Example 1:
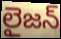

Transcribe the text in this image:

లైజన్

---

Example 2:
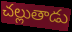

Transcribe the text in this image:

చల్లుతాడు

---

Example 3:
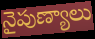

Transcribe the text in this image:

నైపుణ్యాలు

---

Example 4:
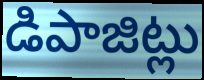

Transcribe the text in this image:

డిపాజిట్లు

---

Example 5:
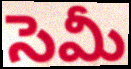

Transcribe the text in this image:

సెమీ